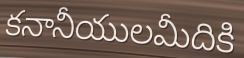
కనానీయులమీదికి